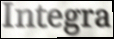
Integra